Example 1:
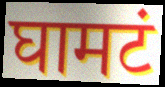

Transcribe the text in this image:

घामटं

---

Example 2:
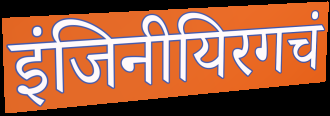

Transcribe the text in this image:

इंजिनीयिरगचं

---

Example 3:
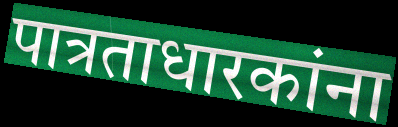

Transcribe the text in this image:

पात्रताधारकांना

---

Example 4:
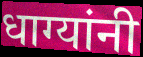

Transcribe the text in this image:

धाग्यांनी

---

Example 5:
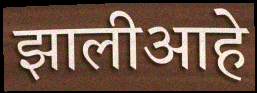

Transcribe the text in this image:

झालीआहे